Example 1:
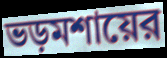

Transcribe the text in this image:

ভড়মশায়ের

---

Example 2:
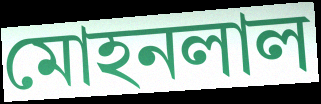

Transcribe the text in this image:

মোহনলাল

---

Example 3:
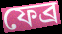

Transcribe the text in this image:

ফেব্র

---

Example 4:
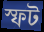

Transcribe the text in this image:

স্ফট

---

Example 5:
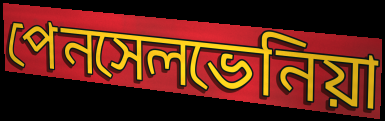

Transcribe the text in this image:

পেনসেলভেনিয়া